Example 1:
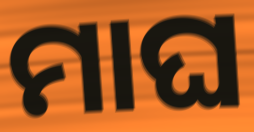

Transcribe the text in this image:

ମାଘ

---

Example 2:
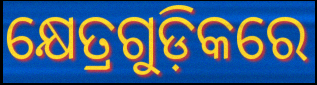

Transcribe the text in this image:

କ୍ଷେତ୍ରଗୁଡ଼ିକରେ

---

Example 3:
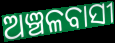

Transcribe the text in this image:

ଅଞ୍ଚଳବାସୀ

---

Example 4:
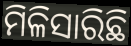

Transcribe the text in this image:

ମିଳିସାରିଛି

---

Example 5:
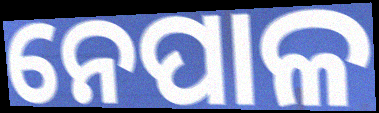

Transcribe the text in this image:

ନେପାଳ